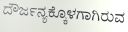
ದೌರ್ಜನ್ಯಕ್ಕೊಳಗಾಗಿರುವ